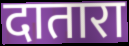
दातारा